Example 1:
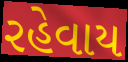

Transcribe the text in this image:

રહેવાય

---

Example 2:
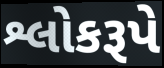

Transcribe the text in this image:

શ્લોકરૂપે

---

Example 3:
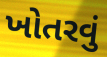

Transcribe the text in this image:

ખોતરવું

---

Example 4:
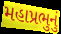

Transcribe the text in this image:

મહાપ્રભુનું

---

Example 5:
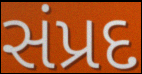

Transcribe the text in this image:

સંપ્રદ